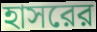
হাসরের